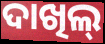
ଦାଖିଲ୍